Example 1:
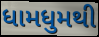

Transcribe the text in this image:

ધામધુમથી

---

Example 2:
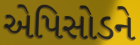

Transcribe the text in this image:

એપિસોડને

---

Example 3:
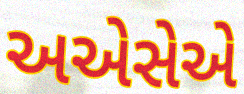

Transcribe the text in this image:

અએસેએ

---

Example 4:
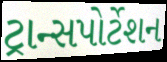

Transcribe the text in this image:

ટ્રાન્સપોર્ટેશન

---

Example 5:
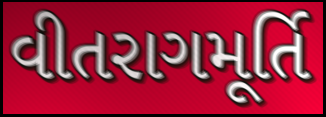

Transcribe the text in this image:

વીતરાગમૂર્તિ